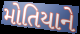
મોતિયાને